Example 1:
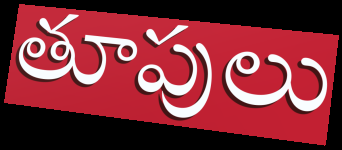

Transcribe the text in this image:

తూపులు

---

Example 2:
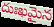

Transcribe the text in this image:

దుఃఖమైన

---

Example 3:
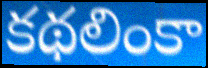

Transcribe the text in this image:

కథలింకా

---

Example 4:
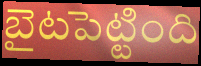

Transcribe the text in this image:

బైటపెట్టింది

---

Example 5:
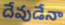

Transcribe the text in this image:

దేవుడేనా